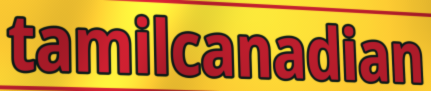
tamilcanadian